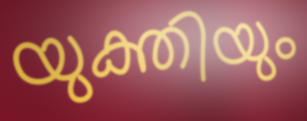
യുക്തിയും